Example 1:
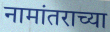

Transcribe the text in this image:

नामांतराच्या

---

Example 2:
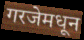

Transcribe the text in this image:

गरजेमधून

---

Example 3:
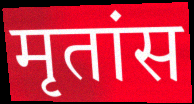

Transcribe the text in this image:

मृतांस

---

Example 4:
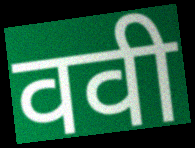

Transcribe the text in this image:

ववी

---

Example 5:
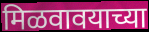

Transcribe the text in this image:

मिळवावयाच्या